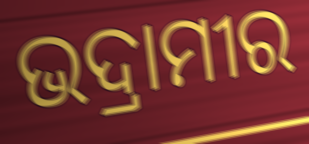
ଭଦ୍ରାମୀର